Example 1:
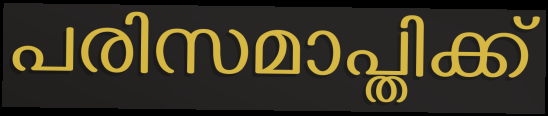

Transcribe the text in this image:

പരിസമാപ്തിക്ക്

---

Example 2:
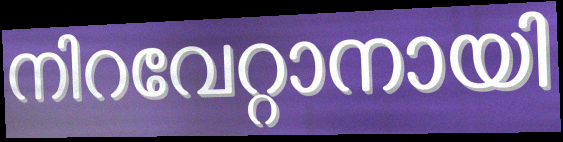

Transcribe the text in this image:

നിറവേറ്റാനായി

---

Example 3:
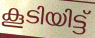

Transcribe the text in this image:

കൂടിയിട്ട്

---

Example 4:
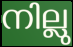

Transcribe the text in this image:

നില്ലു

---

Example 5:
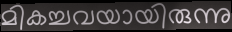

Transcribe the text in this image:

മികച്ചവയായിരുന്നു